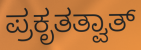
ಪ್ರಕೃತತ್ವಾತ್